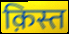
क़िस्त